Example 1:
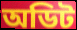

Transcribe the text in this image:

অডিট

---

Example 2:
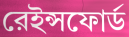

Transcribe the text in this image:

রেইন্সফোর্ড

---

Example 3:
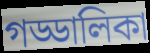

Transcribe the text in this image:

গড্ডালিকা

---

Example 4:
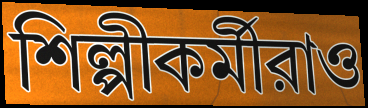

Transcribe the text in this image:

শিল্পীকর্মীরাও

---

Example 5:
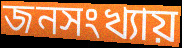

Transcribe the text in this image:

জনসংখ্যায়